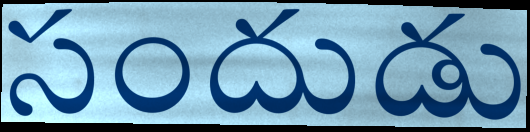
సందుడు